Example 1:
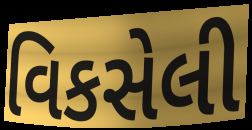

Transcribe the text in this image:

વિકસેલી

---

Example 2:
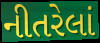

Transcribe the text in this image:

નીતરેલાં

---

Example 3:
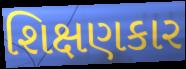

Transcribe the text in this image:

શિક્ષણકાર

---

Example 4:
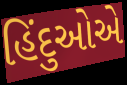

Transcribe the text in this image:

હિંદુઓએ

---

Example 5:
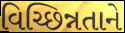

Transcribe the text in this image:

વિચ્છિન્નતાને